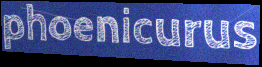
phoenicurus